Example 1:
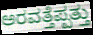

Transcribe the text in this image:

ಅರವತ್ತೆಪ್ಪತ್ತು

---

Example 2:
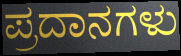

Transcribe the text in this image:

ಪ್ರದಾನಗಳು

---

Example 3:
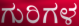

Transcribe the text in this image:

ಗುರಿಗಳ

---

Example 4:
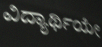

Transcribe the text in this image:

ವಿದ್ಯಾರ್ಥಿಯೇ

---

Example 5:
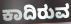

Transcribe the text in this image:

ಕಾದಿರುವ